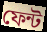
ফেন্ট